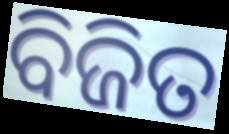
ବିଜିତ